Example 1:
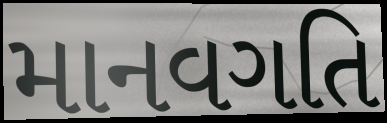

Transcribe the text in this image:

માનવગતિ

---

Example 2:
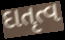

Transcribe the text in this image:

દાતૃત્વ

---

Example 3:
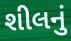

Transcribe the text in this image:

શીલનું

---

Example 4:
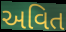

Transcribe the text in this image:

અવિત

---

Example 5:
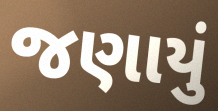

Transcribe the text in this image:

જણાયું